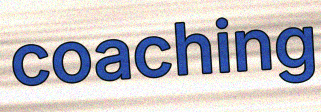
coaching